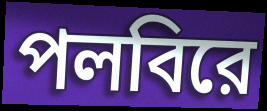
পলবিরে